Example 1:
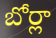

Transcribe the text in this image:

బోర్లా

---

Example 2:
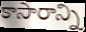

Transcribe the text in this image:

కాసారాన్ని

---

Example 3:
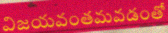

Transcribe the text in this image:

విజయవంతమవడంతో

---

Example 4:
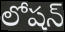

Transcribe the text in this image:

లోషన్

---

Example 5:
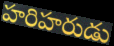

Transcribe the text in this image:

హరిహరుడు